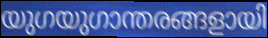
യുഗയുഗാന്തരങ്ങളായി